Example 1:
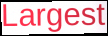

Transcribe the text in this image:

Largest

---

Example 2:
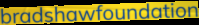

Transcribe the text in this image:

bradshawfoundation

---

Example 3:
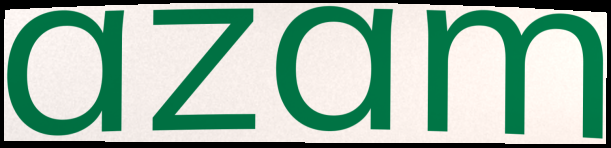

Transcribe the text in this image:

azam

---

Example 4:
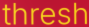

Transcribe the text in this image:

thresh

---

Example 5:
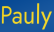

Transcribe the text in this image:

Pauly